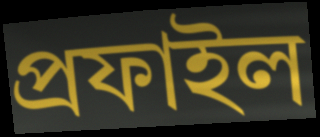
প্ৰফাইল